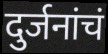
दुर्जनांचं